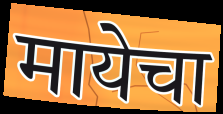
मायेचा